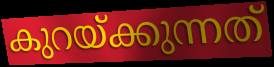
കുറയ്ക്കുന്നത്